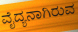
ವೈದ್ಯನಾಗಿರುವ